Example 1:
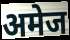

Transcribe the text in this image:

अमेज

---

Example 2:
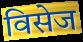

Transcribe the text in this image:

विसेज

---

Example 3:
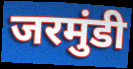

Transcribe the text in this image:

जरमुंडी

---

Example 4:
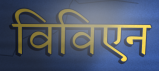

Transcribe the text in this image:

विविएन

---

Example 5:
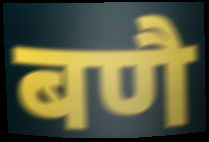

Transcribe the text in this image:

बणै